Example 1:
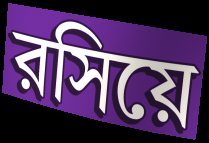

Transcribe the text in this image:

রসিয়ে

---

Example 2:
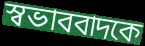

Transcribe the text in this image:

স্বভাববাদকে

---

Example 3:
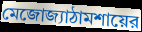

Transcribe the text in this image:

মেজোজ্যাঠামশায়ের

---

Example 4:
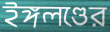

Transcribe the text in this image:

ইঙ্গলণ্ডের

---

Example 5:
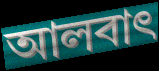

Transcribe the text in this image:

আলবাৎ